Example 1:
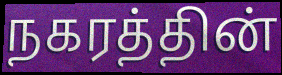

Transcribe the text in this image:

நகரத்தின்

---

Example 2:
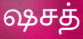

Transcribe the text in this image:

ஷசத்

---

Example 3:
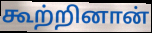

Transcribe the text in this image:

கூற்றினான்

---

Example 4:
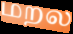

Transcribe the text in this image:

மறல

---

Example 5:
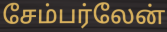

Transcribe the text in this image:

சேம்பர்லேன்